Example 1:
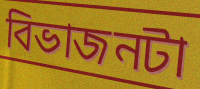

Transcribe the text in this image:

বিভাজনটা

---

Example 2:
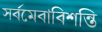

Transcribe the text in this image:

সর্বমেবাবিশন্তি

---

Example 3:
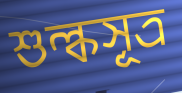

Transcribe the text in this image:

শুল্কসূত্র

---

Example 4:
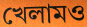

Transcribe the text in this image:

খেলামও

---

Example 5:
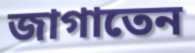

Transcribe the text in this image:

জাগাতেন